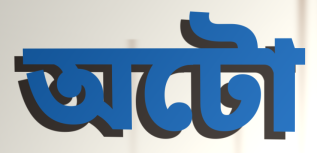
অটো